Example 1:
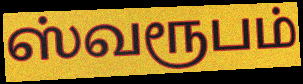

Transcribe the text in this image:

ஸ்வரூபம்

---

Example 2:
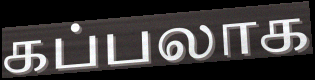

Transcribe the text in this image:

கப்பலாக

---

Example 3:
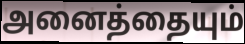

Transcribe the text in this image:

அனைத்தையும்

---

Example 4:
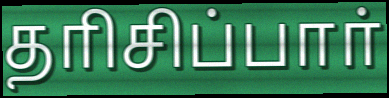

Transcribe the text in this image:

தரிசிப்பார்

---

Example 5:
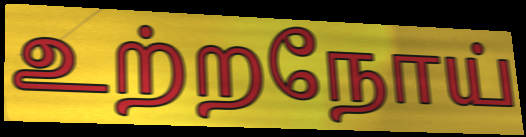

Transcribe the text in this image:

உற்றநோய்